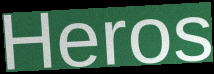
Heros